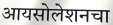
आयसोलेशनचा